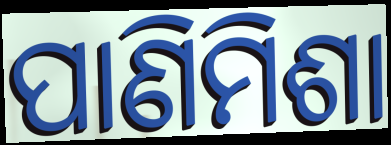
ପାଣିମିଶା